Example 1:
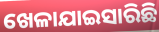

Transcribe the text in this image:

ଖେଳାଯାଇସାରିଛି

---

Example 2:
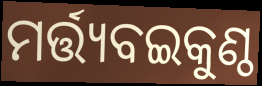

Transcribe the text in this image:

ମର୍ତ୍ତ୍ୟବଇକୁଣ୍ଠ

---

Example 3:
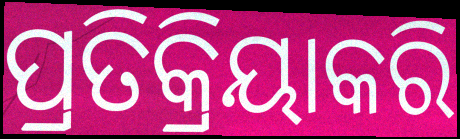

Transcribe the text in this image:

ପ୍ରତିକ୍ରିୟାକରି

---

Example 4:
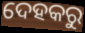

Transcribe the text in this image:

ଦେହକରୁ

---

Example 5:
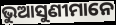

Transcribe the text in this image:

ଭୁଆସୁଣୀମାନେ